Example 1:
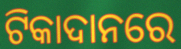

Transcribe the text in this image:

ଟିକାଦାନରେ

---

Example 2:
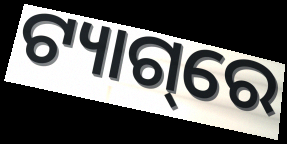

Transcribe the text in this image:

ଟ୍ୟାଗ୍‌ରେ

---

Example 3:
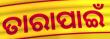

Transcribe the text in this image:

ତାରାପାଇଁ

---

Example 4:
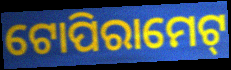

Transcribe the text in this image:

ଟୋପିରାମେଟ୍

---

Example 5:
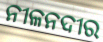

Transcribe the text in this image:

ନୀଳନଦୀର